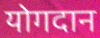
योगदान